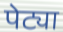
पेट्या